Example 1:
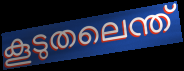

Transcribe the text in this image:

കൂടുതലെന്ത്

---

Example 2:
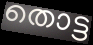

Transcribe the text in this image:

തൊട്ട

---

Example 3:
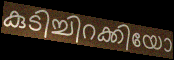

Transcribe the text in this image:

കുടിച്ചിറക്കിയോ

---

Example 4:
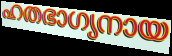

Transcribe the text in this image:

ഹതഭാഗ്യനായ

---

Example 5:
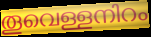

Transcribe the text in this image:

തൂവെള്ളനിറം